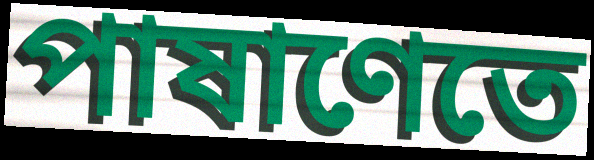
পাষাণেতে